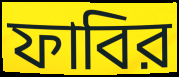
ফাবির